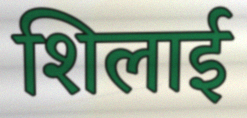
शिलाई